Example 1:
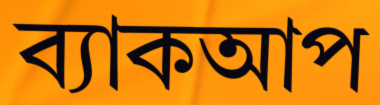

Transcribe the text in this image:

ব্যাকআপ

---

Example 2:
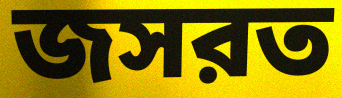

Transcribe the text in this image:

জসরত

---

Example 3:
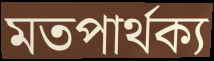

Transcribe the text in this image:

মতপার্থক্য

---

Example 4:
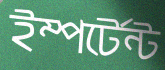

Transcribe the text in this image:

ইম্পর্টেন্ট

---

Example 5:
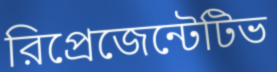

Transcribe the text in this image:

রিপ্রেজেন্টেটিভ